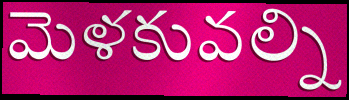
మెళకువల్ని